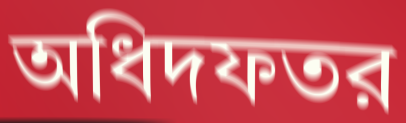
অধিদফতর